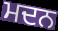
ਮਦਨ